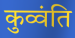
कुव्वंति